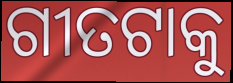
ଗୀତଟାକୁ